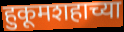
हुकूमशहाच्या